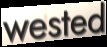
wested